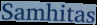
Samhitas